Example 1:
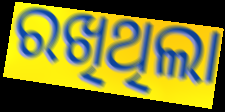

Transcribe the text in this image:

ରଖିଥିଲା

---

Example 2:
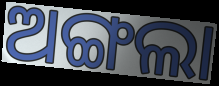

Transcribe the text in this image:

ଅଙ୍ଗଲା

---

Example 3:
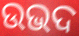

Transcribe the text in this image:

ଉଭଦ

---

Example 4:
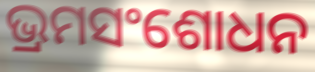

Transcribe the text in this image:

ଭ୍ରମସଂଶୋଧନ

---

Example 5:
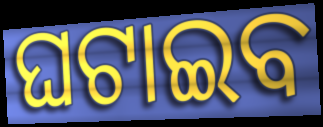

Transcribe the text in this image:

ଘଟାଇବ